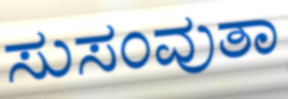
ಸುಸಂವುತಾ